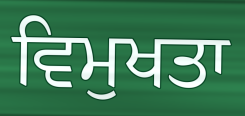
ਵਿਮੁਖਤਾ